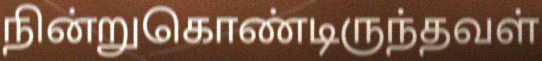
நின்றுகொண்டிருந்தவள்